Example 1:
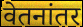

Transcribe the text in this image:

वेतनांतर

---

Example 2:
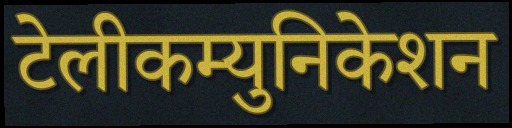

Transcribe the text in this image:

टेलीकम्युनिकेशन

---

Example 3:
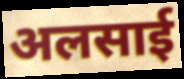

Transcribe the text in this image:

अलसाई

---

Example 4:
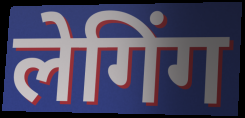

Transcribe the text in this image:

लेगिंग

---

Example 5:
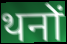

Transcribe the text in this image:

थनों